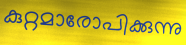
കുറ്റമാരോപിക്കുന്നു